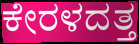
ಕೇರಳದತ್ತ